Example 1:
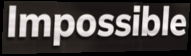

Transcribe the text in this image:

Impossible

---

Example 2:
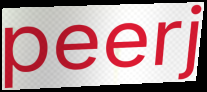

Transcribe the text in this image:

peerj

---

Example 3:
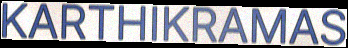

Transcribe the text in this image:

KARTHIKRAMAS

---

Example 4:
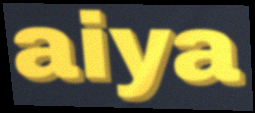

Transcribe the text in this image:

aiya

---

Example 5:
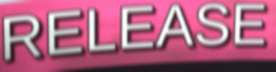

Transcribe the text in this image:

RELEASE